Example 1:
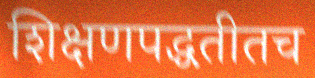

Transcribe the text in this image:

शिक्षणपद्धतीतच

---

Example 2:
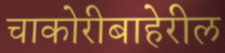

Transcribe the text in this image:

चाकोरीबाहेरील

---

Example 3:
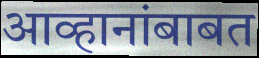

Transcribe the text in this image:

आव्हानांबाबत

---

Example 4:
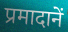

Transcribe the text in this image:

प्रमादानें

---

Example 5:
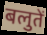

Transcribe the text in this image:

बलुतें